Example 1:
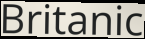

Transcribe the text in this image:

Britanic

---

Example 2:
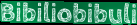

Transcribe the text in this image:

Bibiliobibuli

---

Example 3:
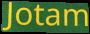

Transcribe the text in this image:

Jotam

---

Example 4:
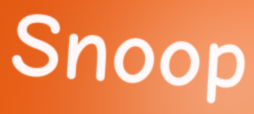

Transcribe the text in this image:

Snoop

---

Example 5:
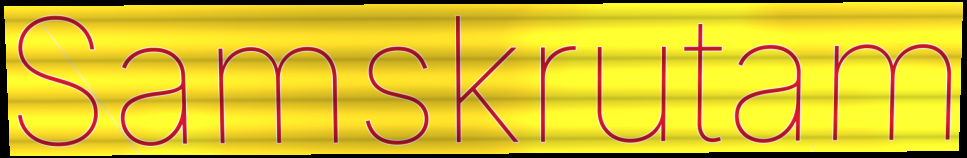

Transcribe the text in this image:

Samskrutam